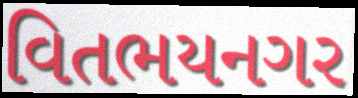
વિતભયનગર